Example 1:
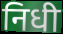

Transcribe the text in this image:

निधी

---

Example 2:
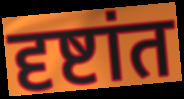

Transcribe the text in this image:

दृष्टांत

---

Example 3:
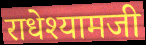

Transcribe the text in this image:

राधेश्यामजी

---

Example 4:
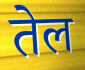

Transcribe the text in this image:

तेल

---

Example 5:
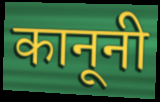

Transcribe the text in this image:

कानूनी